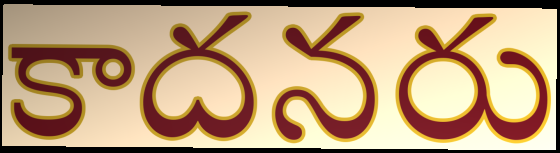
కాదనరు